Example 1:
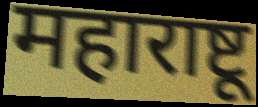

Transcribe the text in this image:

महाराष्टू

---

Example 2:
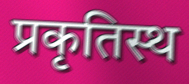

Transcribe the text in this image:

प्रकृतिस्थ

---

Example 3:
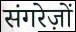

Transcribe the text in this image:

संगरेज़ों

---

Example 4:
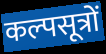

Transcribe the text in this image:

कल्पसूत्रों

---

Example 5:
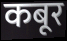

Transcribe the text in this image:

कबूर